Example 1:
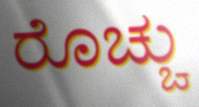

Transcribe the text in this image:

ರೊಚ್ಚು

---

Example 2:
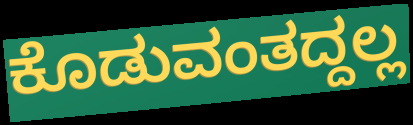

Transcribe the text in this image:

ಕೊಡುವಂತದ್ದಲ್ಲ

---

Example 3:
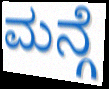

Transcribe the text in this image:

ಮನ್ಗೆ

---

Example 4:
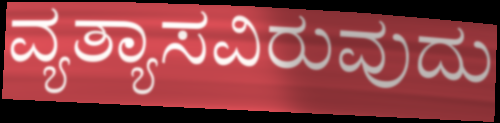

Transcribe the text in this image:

ವ್ಯತ್ಯಾಸವಿರುವುದು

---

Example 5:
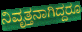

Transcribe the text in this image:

ನಿವೃತ್ತನಾಗಿದ್ದರೂ